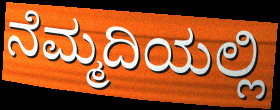
ನೆಮ್ಮದಿಯಲ್ಲಿ